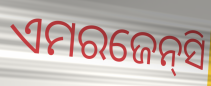
ଏମରଜେନ୍‌ସି